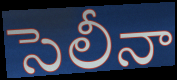
సెలీనా